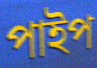
পাইপ